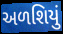
અળશિયું